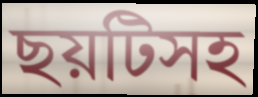
ছয়টিসহ